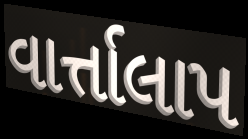
વાર્ત્તાલાપ